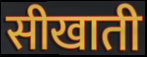
सीखाती